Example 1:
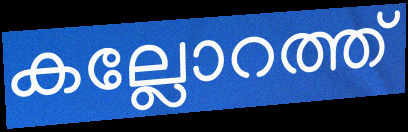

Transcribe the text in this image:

കല്ലോറത്ത്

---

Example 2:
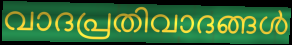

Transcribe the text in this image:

വാദപ്രതിവാദങ്ങൾ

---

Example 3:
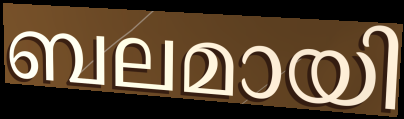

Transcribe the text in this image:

ബലമായി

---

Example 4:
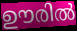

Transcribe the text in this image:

ഊരിൽ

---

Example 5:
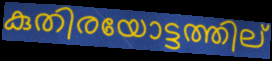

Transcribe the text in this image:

കുതിരയോട്ടത്തില്